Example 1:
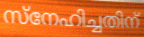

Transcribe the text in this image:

സ്നേഹിച്ചതിന്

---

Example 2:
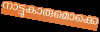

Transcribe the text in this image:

നാട്ടുകാരുമൊക്കെ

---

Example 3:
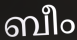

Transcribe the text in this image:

ബീം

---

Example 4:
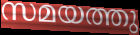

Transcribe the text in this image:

സമയത്തു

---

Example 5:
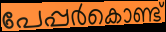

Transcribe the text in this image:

പേപ്പർകൊണ്ട്